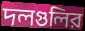
দলগুলির